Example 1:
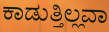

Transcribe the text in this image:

ಕಾಡುತ್ತಿಲ್ಲವಾ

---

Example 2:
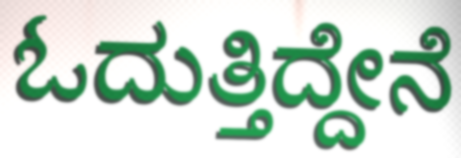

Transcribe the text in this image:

ಓದುತ್ತಿದ್ದೇನೆ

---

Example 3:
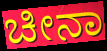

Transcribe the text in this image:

ಚೀನಾ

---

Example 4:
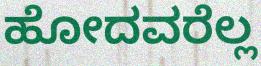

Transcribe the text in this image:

ಹೋದವರೆಲ್ಲ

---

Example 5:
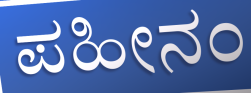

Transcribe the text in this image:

ಪಹೀನಂ